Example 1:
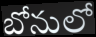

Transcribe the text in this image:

బోనులో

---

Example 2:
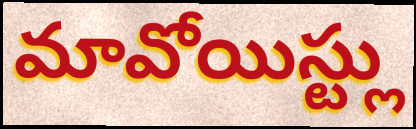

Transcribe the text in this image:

మావోయిస్ట్లు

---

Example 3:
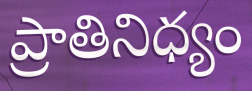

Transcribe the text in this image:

ప్రాతినిధ్యం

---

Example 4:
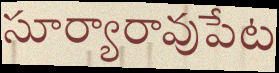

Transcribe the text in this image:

సూర్యారావుపేట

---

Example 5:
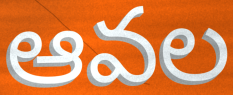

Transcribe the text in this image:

ఆవల